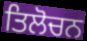
ਤਿਲੋਚਨ